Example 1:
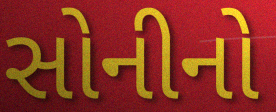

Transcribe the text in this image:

સોનીનો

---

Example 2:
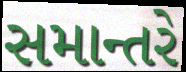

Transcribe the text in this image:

સમાન્તરે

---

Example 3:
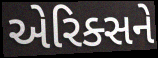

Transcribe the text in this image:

એરિક્સને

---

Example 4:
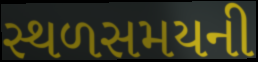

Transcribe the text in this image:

સ્થળસમયની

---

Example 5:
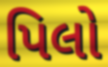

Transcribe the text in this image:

પિલો